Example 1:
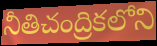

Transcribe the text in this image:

నీతిచంద్రికలోని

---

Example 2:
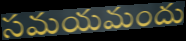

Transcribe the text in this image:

సమయమందు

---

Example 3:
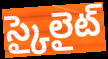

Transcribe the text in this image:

స్కైలైట్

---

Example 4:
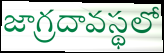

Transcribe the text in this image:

జాగ్రదావస్థలో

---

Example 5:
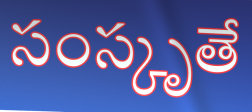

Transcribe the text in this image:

సంస్కృతే